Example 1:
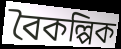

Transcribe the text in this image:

বৈকল্পিক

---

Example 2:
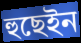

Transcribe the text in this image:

হুছেইন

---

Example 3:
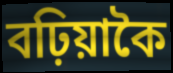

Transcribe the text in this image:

বঢ়িয়াকৈ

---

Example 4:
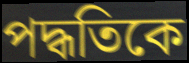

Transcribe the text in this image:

পদ্ধতিকে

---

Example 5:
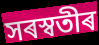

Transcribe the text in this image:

সৰস্বতীৰ